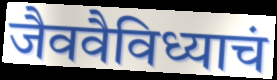
जैववैविध्याचं